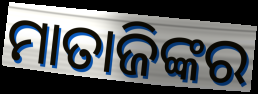
ମାତାଜିଙ୍କର